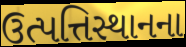
ઉત્પત્તિસ્થાનના